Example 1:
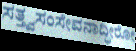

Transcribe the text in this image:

ಸತ್ತ್ವಸಂಸೇವನಾದ್ಧೀರೋ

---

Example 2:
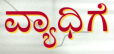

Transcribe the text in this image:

ವ್ಯಾಧಿಗೆ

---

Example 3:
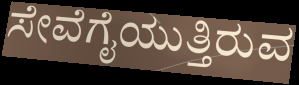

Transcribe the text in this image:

ಸೇವೆಗೈಯುತ್ತಿರುವ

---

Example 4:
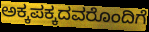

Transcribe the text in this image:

ಅಕ್ಕಪಕ್ಕದವರೊಂದಿಗೆ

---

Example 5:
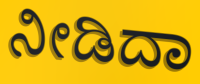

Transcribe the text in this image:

ನೀಡಿದಾ